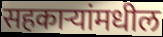
सहकाऱ्यांमधील